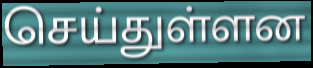
செய்துள்ளன